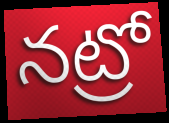
నట్రో